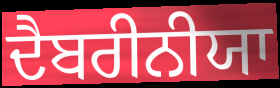
ਦੈਬਰੀਨੀਯਾ